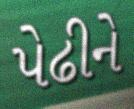
પેઢીને